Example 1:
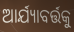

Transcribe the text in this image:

ଆର୍ଯ୍ୟାବର୍ତ୍ତକୁ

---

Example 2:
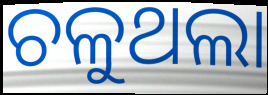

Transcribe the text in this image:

ଚଳୁଥଲା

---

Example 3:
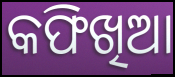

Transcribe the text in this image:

କଫିଖିଆ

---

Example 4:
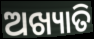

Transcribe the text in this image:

ଅଖ୍ୟାତି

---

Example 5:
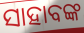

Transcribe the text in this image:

ସାହାବଙ୍କ